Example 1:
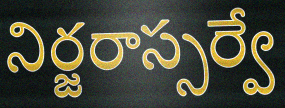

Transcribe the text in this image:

నిర్జరాస్సర్వే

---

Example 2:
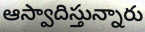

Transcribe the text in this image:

ఆస్వాదిస్తున్నారు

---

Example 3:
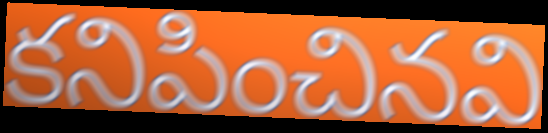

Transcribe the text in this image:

కనిపించినవి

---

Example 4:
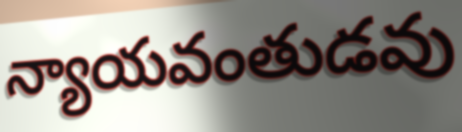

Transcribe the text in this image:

న్యాయవంతుడవు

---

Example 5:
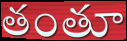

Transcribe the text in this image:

తంతూ